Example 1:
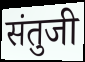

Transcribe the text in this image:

संतुजी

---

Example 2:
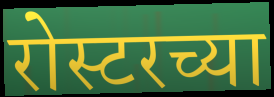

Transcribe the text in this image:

रोस्टरच्या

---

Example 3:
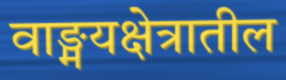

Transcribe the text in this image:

वाङ्मयक्षेत्रातील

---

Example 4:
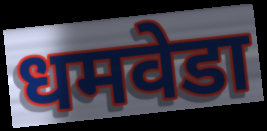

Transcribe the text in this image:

धमवेडा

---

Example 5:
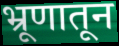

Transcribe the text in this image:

भ्रूणातून